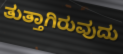
ತುತ್ತಾಗಿರುವುದು